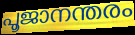
പൂജാനന്തരം